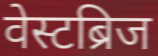
वेस्टब्रिज